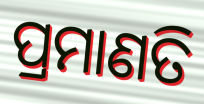
ପ୍ରମାଣତି